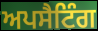
ਅਪਸੈਟਿੰਗ